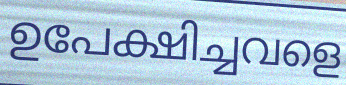
ഉപേക്ഷിച്ചവളെ